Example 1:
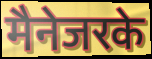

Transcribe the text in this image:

मैनेजरके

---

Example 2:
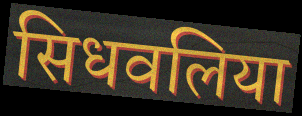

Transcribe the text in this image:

सिधवलिया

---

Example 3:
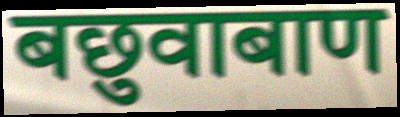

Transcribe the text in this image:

बछुवाबाण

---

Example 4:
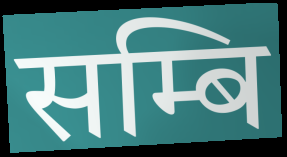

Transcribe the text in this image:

सम्बि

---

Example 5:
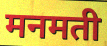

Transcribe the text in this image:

मनमती